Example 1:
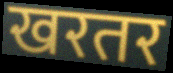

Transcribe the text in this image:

खरतर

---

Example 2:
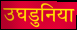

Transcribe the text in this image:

उघडुनिया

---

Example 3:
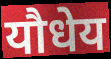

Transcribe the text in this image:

यौधेय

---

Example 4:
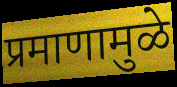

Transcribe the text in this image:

प्रमाणामुळे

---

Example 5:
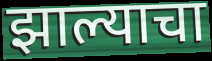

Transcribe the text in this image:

झाल्याचा